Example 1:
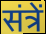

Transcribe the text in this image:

संत्रें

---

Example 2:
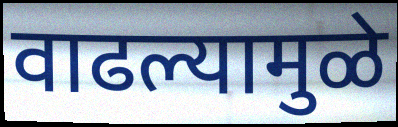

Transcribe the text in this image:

वाढल्यामुळे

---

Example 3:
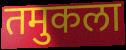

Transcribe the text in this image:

तमुकला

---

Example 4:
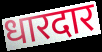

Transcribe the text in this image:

धारदार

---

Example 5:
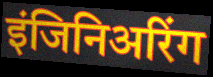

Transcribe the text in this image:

इंजिनिअरिंग